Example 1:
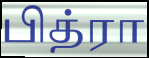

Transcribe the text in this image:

பித்ரா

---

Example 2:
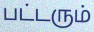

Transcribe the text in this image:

பட்டரும்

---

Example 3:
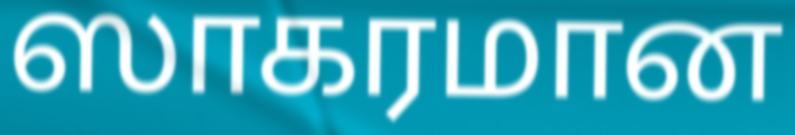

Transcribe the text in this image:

ஸாகரமான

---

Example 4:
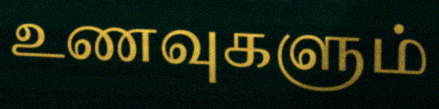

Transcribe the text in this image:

உணவுகளும்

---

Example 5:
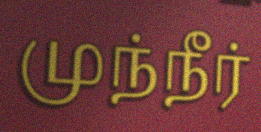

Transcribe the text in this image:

முந்நீர்